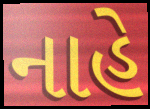
નાહે